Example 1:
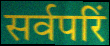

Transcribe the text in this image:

सर्वपरिं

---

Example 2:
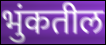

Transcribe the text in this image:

भुंकतील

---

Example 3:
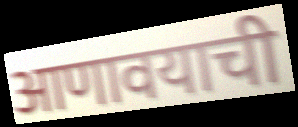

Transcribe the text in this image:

आणावयाची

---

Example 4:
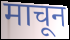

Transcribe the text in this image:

माचून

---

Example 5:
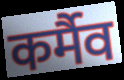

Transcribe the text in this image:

कर्मैव